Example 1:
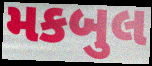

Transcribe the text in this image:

મકબુલ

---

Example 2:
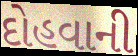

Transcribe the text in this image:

દોહવાની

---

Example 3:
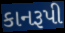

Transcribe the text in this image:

કાનરૂપી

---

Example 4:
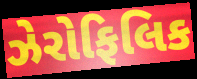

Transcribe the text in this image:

ઝેરોફિલિક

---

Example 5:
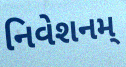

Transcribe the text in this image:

નિવેશનમ્